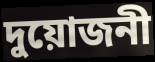
দুয়োজনী